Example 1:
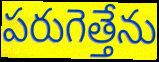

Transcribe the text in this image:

పరుగెత్తేను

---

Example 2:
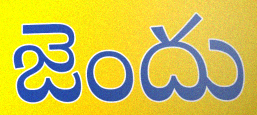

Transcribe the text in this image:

జెందు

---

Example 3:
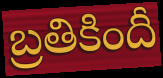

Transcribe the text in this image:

బ్రతికిందీ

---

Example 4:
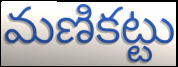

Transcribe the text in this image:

మణికట్టు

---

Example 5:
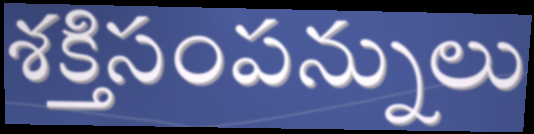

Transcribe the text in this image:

శక్తిసంపన్నులు